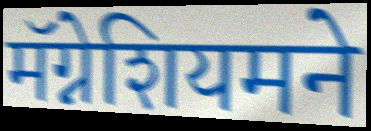
मॅग्नेशियमने